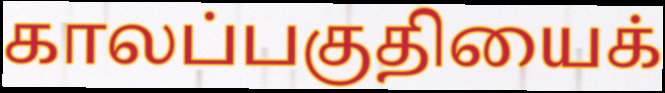
காலப்பகுதியைக்